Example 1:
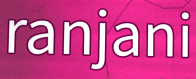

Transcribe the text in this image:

ranjani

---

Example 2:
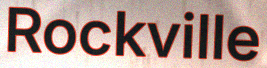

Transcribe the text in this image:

Rockville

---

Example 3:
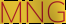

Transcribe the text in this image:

MNG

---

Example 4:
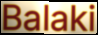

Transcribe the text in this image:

Balaki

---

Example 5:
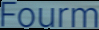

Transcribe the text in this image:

Fourm